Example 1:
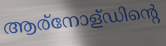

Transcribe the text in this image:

ആര്നോള്ഡിന്റെ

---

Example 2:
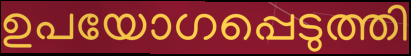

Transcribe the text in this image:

ഉപയോഗപ്പെടുത്തി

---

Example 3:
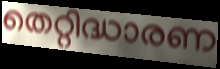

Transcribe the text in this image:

തെറ്റിദ്ധാരണ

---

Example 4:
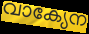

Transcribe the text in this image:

വാക്യേന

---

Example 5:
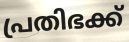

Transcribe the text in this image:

പ്രതിഭക്ക്